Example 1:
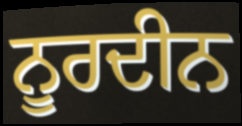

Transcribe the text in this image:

ਨੂਰਦੀਨ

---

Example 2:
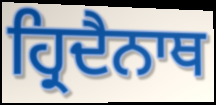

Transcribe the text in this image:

ਹ੍ਰਿਦੈਨਾਥ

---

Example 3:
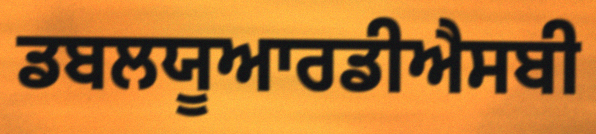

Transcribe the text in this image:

ਡਬਲਯੂਆਰਡੀਐਸਬੀ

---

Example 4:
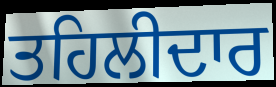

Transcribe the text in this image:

ਤਹਿਲੀਦਾਰ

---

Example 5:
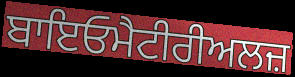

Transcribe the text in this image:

ਬਾਇਓਮੈਟੀਰੀਅਲਜ਼